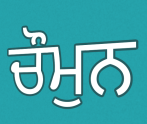
ਚੌਮੁਨ